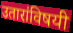
उतारांविषयी